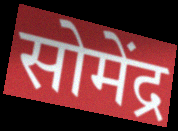
सोमेंद्र